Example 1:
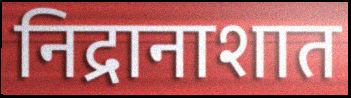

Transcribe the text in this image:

निद्रानाशात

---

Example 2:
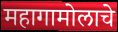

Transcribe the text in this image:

महागामोलाचे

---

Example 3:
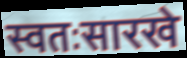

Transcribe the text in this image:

स्वतःसारखे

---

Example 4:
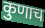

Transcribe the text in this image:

कुणाच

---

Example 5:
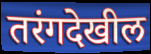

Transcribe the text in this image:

तरंगदेखील